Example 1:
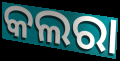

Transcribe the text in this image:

କଲରା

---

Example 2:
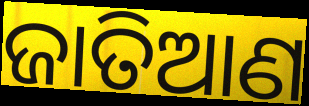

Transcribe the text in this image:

ଜାତିଆଣ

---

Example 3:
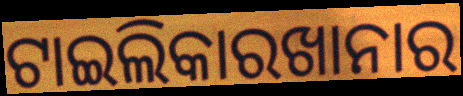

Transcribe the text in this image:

ଟାଇଲିକାରଖାନାର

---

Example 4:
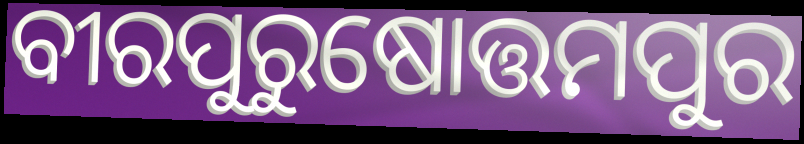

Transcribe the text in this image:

ବୀରପୁରୁଷୋତ୍ତମପୁର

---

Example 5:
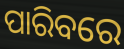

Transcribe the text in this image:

ପାରିବରେ